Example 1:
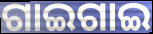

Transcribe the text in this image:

ଗାଇଗାଇ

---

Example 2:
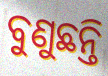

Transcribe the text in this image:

ବୁଣୁଛନ୍ତି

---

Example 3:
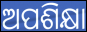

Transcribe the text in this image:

ଅପଶିକ୍ଷା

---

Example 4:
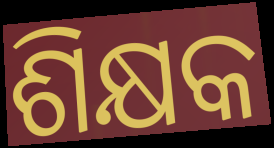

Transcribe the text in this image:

ଶିକ୍ଷକ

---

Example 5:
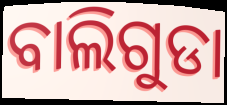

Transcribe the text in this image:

ବାଲିଗୁଡା